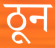
ठून